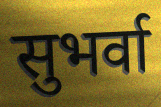
सुभर्वा